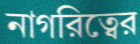
নাগরিত্বের